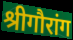
श्रीगौरांग